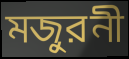
মজুরনী